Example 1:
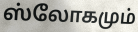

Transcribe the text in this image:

ஸ்லோகமும்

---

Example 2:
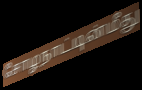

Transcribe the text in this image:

சோழநாட்டின்மீது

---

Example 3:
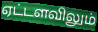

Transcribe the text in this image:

ஏட்டளவிலும்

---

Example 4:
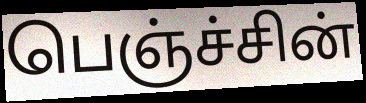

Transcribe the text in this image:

பெஞ்ச்சின்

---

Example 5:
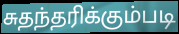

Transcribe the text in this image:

சுதந்தரிக்கும்படி